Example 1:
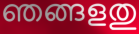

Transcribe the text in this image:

ഞങ്ങളതു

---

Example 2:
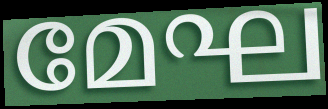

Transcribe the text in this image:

മേഘ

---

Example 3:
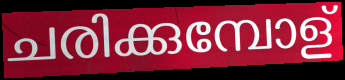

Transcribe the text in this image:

ചരിക്കുമ്പോള്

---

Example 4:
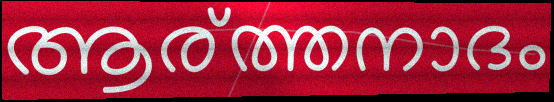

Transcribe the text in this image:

ആര്ത്തനാദം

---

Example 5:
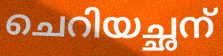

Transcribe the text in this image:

ചെറിയച്ഛന്